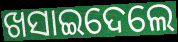
ଖସାଇଦେଲେ